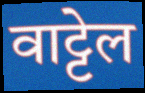
वाट्टेल